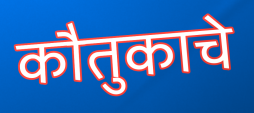
कौतुकाचे